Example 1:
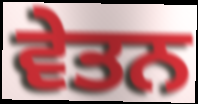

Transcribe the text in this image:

ਵੇਤਨ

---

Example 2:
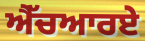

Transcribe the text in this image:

ਐੱਚਆਰਏ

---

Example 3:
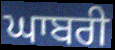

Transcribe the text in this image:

ਘਾਬਰੀ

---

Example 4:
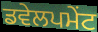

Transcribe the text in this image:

ਡਵੇਲਪਮੇਂਟ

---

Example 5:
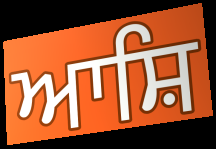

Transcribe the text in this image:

ਆਸ਼ਿ